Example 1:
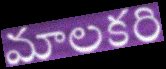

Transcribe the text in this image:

మాలకరి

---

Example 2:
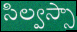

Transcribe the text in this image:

సిల్వస్సా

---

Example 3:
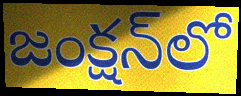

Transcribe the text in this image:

జంక్షన్‌లో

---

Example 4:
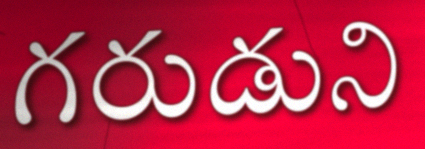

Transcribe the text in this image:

గరుడుని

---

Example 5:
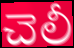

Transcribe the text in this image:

చెలీ